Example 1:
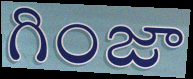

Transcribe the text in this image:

గింజా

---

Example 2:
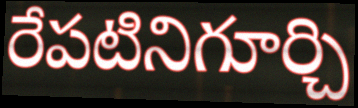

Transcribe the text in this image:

రేపటినిగూర్చి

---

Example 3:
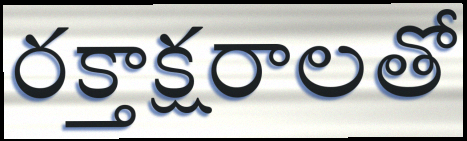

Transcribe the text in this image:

రక్తాక్షరాలతో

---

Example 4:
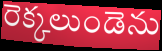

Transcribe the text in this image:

రెక్కలుండెను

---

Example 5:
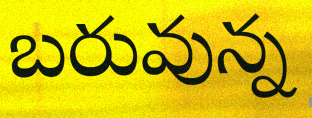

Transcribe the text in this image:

బరువున్న